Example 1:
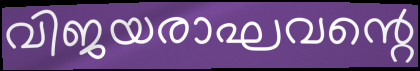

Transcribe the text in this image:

വിജയരാഘവന്റെ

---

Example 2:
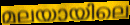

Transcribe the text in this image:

മലയായിലെ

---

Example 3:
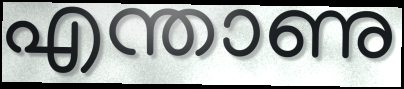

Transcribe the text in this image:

എന്താണു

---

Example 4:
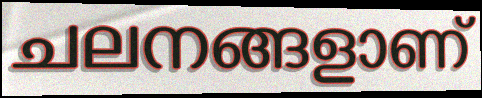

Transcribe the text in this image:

ചലനങ്ങളാണ്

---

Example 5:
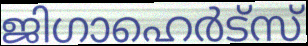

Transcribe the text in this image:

ജിഗാഹെർട്സ്